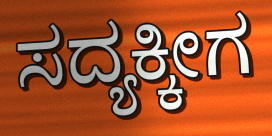
ಸದ್ಯಕ್ಕೀಗ